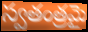
స్వతంత్రమై